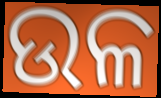
ଉଳ